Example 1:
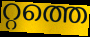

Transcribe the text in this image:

റ്റത്തെ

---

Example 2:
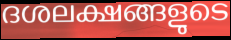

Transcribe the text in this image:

ദശലക്ഷങ്ങളുടെ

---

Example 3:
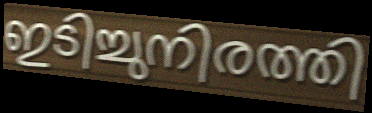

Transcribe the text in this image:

ഇടിച്ചുനിരത്തി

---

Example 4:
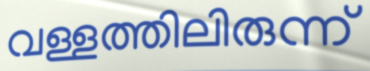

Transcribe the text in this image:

വള്ളത്തിലിരുന്ന്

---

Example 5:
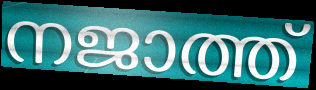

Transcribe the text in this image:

നജാത്ത്